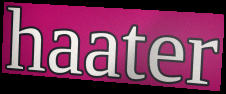
haater